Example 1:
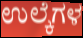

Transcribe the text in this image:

ಉಲ್ಕೆಗಳ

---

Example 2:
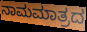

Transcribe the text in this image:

ನಾಮಮಾತ್ರದ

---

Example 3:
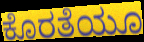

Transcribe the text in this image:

ಕೊರತೆಯೂ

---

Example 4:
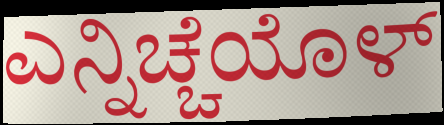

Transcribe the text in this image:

ಎನ್ನಿಚ್ಚೆಯೊಳ್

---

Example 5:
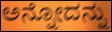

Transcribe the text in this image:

ಅನ್ನೋದನ್ನು